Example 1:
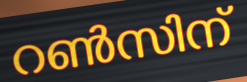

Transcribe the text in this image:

റൺസിന്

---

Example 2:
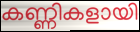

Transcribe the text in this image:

കണ്ണികളായി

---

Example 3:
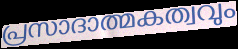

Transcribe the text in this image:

പ്രസാദാത്മകത്വവും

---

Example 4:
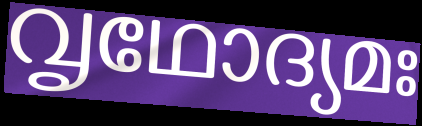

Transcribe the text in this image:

വൃഥോദ്യമഃ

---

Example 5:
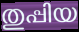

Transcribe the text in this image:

തുപ്പിയ